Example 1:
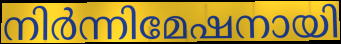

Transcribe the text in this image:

നിർന്നിമേഷനായി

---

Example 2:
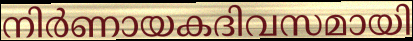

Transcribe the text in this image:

നിർണായകദിവസമായി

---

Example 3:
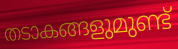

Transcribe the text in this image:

തടാകങ്ങളുമുണ്ട്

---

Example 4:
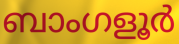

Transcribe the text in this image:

ബാംഗളൂർ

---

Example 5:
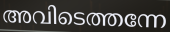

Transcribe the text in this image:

അവിടെത്തന്നേ